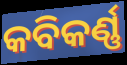
କବିକର୍ଣ୍ଣ